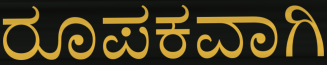
ರೂಪಕವಾಗಿ